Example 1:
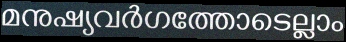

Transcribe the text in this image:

മനുഷ്യവർഗത്തോടെല്ലാം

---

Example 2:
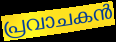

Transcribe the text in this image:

പ്രവാചകൻ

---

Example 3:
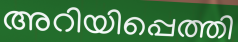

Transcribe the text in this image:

അറിയിപ്പെത്തി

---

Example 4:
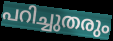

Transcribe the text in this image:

പറിച്ചുതരും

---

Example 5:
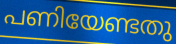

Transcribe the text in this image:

പണിയേണ്ടതു